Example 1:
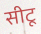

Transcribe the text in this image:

सीटू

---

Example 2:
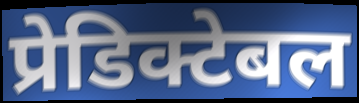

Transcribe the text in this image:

प्रेडिक्टेबल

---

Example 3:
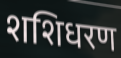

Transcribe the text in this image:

शशिधरण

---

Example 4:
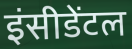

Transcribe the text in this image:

इंसीडेंटल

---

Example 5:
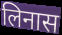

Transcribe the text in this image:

लिनास